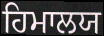
ਹਿਮਾਲਯ